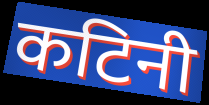
कटिनी